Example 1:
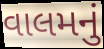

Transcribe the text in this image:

વાલમનું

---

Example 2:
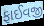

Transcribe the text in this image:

ફાઈવજી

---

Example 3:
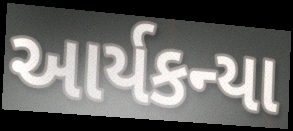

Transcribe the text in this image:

આર્યકન્યા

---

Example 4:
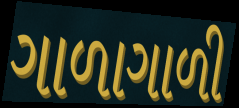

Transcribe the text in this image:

ગાળાગાળી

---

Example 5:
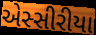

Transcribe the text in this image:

એસ્સીરીયા